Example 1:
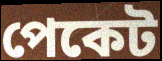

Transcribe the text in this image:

পেকেট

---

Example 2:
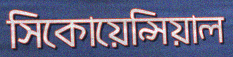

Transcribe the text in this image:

সিকোয়েন্সিয়াল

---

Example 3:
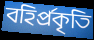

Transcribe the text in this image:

বহির্প্রকৃতি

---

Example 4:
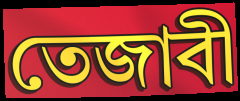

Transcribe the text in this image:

তেজাবী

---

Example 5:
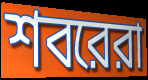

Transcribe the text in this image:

শবরেরা